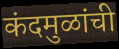
कंदमुळांची